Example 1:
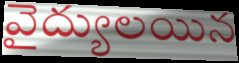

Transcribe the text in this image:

వైద్యులయిన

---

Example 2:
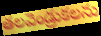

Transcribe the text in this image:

తలవెండ్రుకలను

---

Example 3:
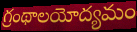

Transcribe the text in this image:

గ్రంథాలయోద్యమం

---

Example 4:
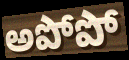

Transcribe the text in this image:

అపోపో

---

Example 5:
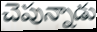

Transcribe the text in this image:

చెపున్నాడు